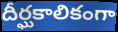
దీర్ఘకాలికంగా